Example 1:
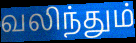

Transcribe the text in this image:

வலிந்தும்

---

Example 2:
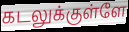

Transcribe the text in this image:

கடலுக்குள்ளே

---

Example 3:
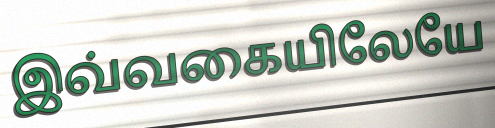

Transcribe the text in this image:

இவ்வகையிலேயே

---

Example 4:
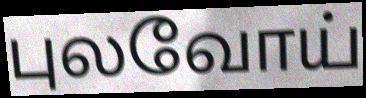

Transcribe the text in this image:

புலவோய்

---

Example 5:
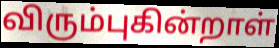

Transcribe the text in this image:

விரும்புகின்றாள்